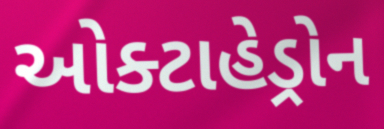
ઓક્ટાહેડ્રોન